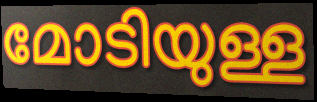
മോടിയുള്ള